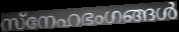
സ്നേഹഭംഗങ്ങൾ